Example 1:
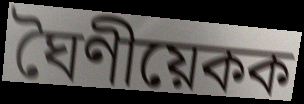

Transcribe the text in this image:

ঘৈণীয়েকক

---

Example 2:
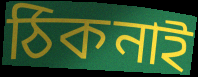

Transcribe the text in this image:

ঠিকনাই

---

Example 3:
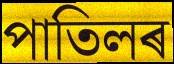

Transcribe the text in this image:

পাতিলৰ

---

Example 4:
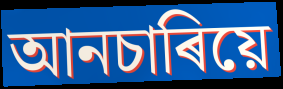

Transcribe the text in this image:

আনচাৰিয়ে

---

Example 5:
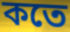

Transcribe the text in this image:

কতে